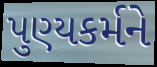
પુણ્યકર્મને